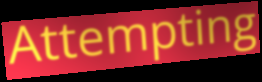
Attempting